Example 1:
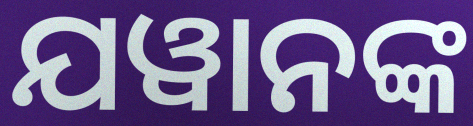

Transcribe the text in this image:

ଯୱାନଙ୍କ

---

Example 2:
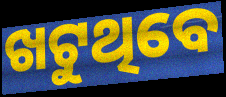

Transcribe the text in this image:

ଖଟୁଥିବେ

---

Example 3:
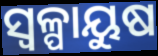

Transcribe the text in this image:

ସ୍ୱଳ୍ପାୟୁଷ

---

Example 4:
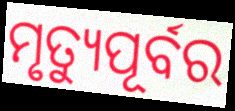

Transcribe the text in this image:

ମୃତ୍ୟୁପୂର୍ବର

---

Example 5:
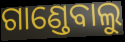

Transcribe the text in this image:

ଗାଣ୍ଡେବାଲୁ